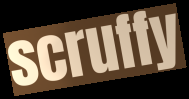
scruffy